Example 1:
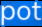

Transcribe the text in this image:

pot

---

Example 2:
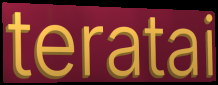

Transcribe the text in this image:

teratai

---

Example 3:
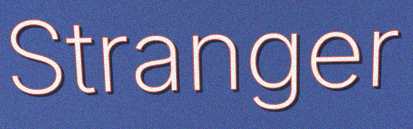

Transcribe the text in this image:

Stranger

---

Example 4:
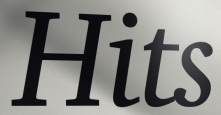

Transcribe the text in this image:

Hits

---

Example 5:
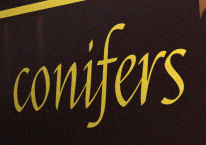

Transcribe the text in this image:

conifers